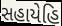
સહાયેહિ